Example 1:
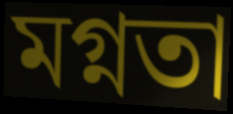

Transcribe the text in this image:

মগ্নতা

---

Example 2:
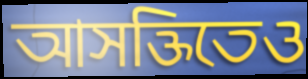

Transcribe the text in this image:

আসক্তিতেও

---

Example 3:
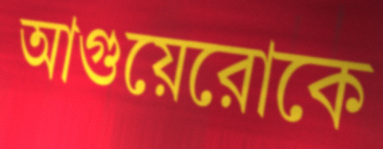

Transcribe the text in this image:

আগুয়েরোকে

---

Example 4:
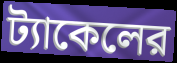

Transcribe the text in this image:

ট্যাকেলের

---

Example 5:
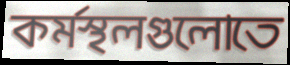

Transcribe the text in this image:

কর্মস্থলগুলোতে